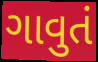
ગાવુતં